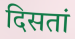
दिसतां